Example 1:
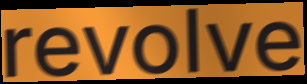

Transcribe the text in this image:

revolve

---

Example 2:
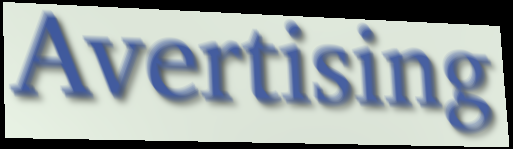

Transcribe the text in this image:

Avertising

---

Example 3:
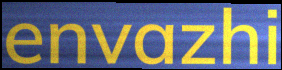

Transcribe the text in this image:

envazhi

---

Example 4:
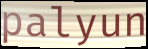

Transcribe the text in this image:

palyun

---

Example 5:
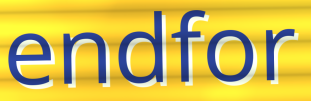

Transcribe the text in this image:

endfor